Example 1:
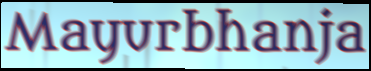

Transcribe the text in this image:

Mayurbhanja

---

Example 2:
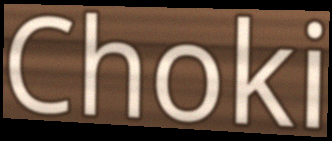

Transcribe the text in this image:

Choki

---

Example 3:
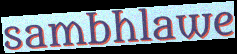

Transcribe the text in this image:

sambhlawe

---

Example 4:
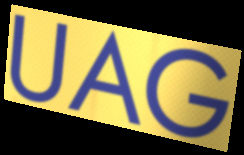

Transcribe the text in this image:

UAG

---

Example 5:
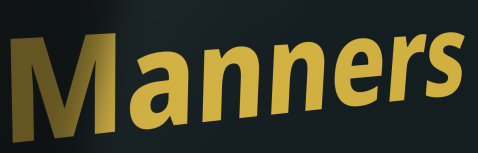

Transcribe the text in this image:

Manners